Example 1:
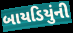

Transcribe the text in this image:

બાયડિયુંની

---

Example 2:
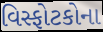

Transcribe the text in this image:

વિસ્ફોટકોના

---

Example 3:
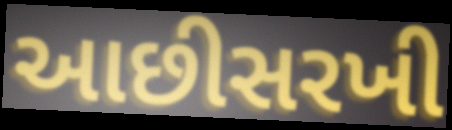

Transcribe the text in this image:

આછીસરખી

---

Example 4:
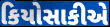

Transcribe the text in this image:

કિયોસાકીએ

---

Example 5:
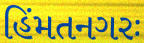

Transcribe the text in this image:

હિંમતનગરઃ